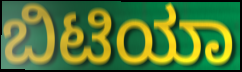
ಬಿಟಿಯಾ